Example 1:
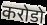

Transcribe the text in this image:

करोडो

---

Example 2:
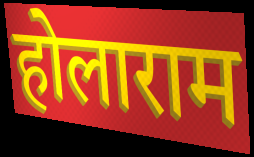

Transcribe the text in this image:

होलाराम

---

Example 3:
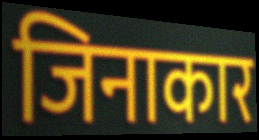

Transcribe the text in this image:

जिनाकार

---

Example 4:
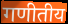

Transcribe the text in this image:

गणीतीय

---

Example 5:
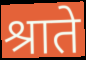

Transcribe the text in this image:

श्राते